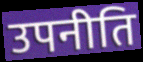
उपनीति